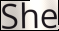
She